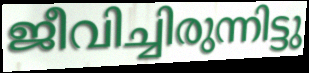
ജീവിച്ചിരുന്നിട്ടു